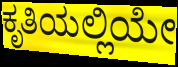
ಕೃತಿಯಲ್ಲಿಯೇ